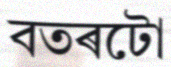
বতৰটো